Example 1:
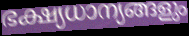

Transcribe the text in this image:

ഭക്ഷ്യധാന്യങ്ങളും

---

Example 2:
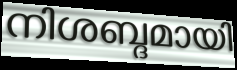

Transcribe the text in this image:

നിശബ്ദമായി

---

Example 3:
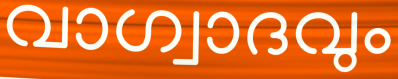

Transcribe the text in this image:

വാഗ്വാദവും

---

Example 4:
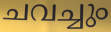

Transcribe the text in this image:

ചവച്ചും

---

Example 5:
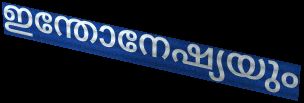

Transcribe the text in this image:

ഇന്തോനേഷ്യയും